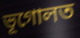
ভূগোলত